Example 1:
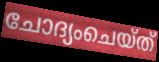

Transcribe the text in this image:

ചോദ്യംചെയ്ത്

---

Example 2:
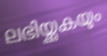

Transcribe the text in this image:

ലഭിയ്ക്കുകയും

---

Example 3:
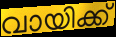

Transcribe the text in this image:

വായിക്ക്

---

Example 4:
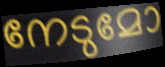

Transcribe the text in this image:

നേടുമോ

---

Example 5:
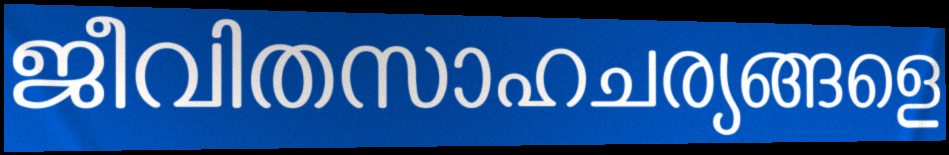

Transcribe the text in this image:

ജീവിതസാഹചര്യങ്ങളെ